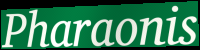
Pharaonis